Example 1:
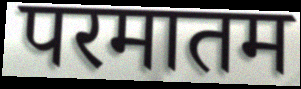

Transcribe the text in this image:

परमातम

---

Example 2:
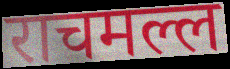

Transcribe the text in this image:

राचमल्ल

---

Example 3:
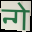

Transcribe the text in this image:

न्गे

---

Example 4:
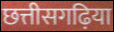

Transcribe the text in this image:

छत्तीसगढ़िया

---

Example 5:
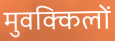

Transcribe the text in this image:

मुवक्किलों